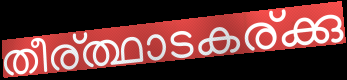
തീര്ത്ഥാടകര്ക്കു